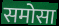
समोसा